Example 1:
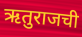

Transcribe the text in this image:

ऋतुराजची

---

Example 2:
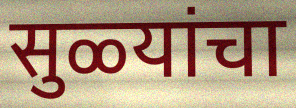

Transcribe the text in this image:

सुळ्यांचा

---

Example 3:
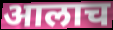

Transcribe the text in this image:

आलाच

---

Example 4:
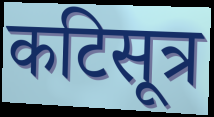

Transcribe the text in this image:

कटिसूत्र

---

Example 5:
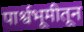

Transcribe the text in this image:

पार्श्वभूमीतून